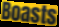
Boasts